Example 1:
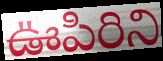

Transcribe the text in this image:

ఊపిరిని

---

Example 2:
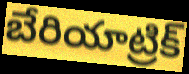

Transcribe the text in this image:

బేరియాట్రిక్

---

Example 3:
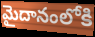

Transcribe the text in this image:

మైదానంలోకి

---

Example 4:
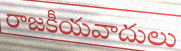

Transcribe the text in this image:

రాజకీయవాదులు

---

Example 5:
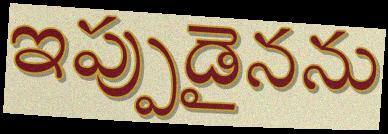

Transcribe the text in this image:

ఇప్పుడైనను